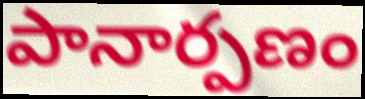
పానార్పణం